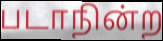
படாநின்ற